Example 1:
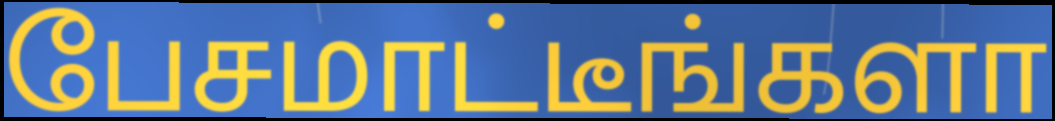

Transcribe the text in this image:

பேசமாட்டீங்களா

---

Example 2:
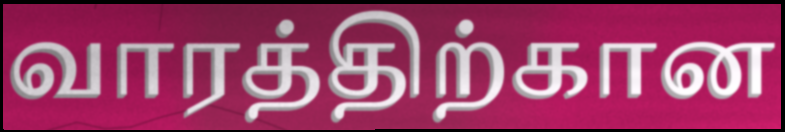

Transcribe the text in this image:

வாரத்திற்கான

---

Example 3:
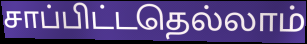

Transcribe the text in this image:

சாப்பிட்டதெல்லாம்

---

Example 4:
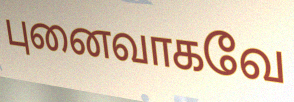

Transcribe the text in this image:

புனைவாகவே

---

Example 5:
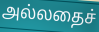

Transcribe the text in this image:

அல்லதைச்